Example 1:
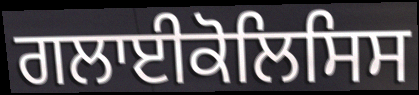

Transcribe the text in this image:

ਗਲਾਈਕੋਲਿਸਿਸ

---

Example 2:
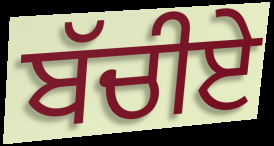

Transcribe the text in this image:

ਬੱਚੀਏ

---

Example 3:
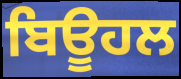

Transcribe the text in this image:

ਬਿਊਹਲ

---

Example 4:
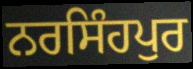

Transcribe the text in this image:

ਨਰਸਿੰਹਪੁਰ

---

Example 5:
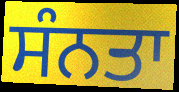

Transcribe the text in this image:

ਸੰਨਤਾ